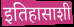
इतिहासाशी